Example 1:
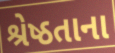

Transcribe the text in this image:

શ્રેષ્ઠતાના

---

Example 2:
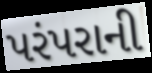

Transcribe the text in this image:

પરંપરાની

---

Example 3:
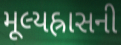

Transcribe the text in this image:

મૂલ્યહ્રાસની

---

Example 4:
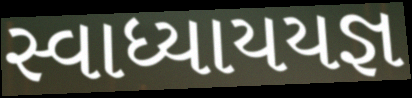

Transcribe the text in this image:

સ્વાધ્યાયયજ્ઞ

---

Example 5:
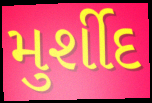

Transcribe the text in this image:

મુર્શીદ